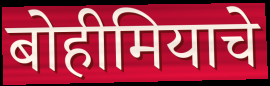
बोहीमियाचे